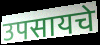
उपसायचे